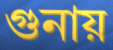
গুনায়